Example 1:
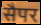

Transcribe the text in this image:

सैपर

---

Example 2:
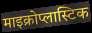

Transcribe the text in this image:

माइक्रोप्लास्टिक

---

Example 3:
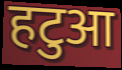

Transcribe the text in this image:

हटुआ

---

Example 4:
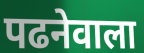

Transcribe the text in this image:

पढनेवाला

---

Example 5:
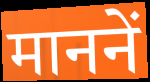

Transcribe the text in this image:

माननें